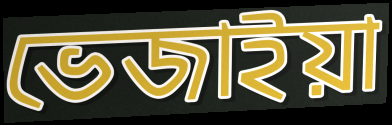
ভেজাইয়া